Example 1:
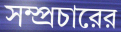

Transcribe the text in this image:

সম্প্রচারের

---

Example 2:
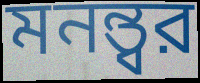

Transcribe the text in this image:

মনন্ত্বর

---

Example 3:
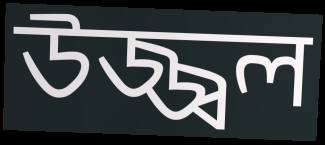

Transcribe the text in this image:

উজ্জ্বল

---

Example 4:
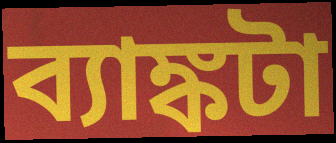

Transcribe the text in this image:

ব্যাঙ্কটা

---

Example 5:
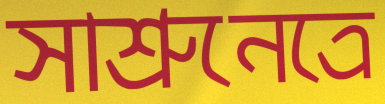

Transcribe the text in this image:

সাশ্রুনেত্রে